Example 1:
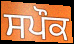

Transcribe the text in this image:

ਸਪੌਕ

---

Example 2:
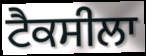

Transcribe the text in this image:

ਟੈਕਸੀਲਾ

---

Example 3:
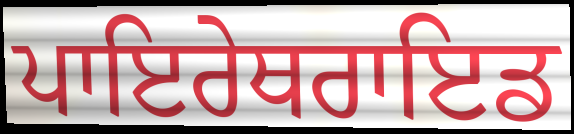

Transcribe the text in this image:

ਪਾਇਰੇਥਰਾਇਡ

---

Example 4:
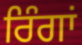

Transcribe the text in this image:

ਰਿੰਗਾਂ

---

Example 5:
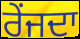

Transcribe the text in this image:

ਰੇਂਜਦਾ